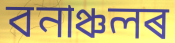
বনাঞ্চলৰ